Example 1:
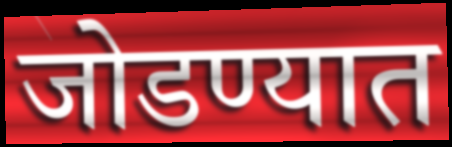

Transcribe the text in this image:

जोडण्यात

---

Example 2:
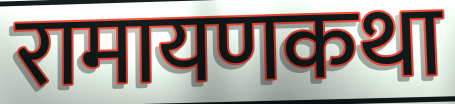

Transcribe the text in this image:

रामायणकथा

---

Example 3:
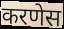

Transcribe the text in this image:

करणेस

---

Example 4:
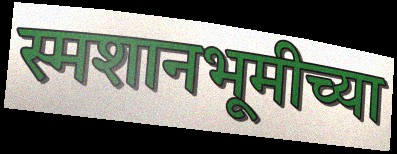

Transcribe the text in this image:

स्मशानभूमीच्या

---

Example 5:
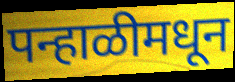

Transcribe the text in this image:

पन्हाळीमधून